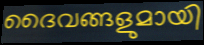
ദൈവങ്ങളുമായി